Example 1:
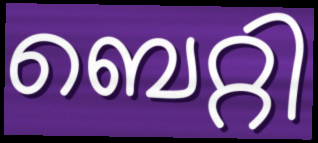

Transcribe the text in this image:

ബെറ്റി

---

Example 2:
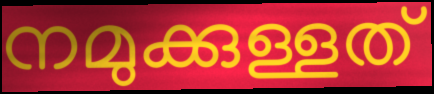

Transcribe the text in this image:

നമുക്കുള്ളത്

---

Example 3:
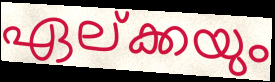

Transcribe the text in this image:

ഏല്ക്കയും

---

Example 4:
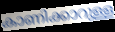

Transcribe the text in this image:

കാണിക്കാറുള്ള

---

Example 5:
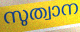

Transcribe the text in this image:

സുത്വാന